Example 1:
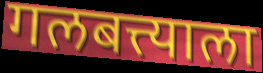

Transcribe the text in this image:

गलबत्त्याला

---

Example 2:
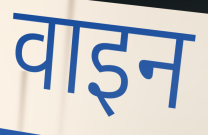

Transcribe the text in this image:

वाइन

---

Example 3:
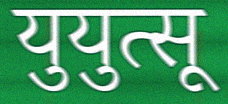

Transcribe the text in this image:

युयुत्सू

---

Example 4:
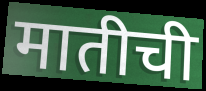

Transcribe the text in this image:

मातीची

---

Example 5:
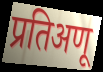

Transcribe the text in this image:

प्रतिअणू